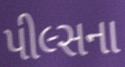
પીલ્સના